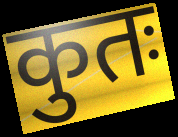
कुतः